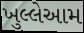
ખુલ્લેઆમ